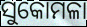
ସୁକୋମଳା